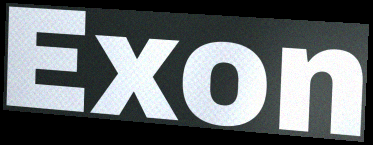
Exon